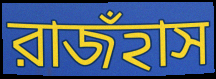
রাজঁহাস